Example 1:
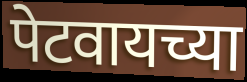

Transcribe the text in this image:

पेटवायच्या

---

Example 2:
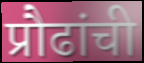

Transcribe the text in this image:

प्रौढांची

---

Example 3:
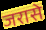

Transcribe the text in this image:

जरासे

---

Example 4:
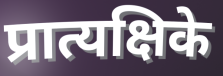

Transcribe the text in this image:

प्रात्यक्षिके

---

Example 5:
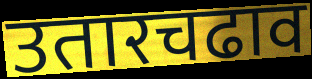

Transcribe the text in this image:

उतारचढाव